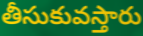
తీసుకువస్తారు